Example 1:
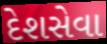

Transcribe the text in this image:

દેશસેવા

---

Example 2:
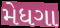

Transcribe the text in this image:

મેધગા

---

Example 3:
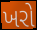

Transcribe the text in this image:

ખરો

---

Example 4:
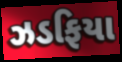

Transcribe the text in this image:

ઝડફિયા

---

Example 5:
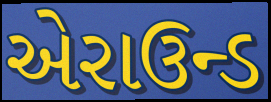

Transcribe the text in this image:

એરાઉન્ડ